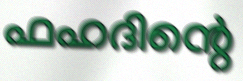
ഫഹദിന്റെ